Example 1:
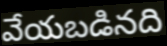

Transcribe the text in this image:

వేయబడినది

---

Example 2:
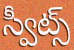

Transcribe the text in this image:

స్వీట్స్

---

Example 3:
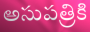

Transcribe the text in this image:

అసుపత్రికి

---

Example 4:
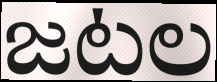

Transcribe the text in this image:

జటల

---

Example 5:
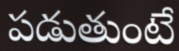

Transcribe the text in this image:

పడుతుంటే